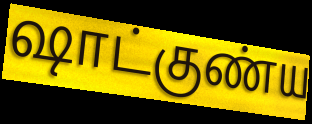
ஷாட்குண்ய